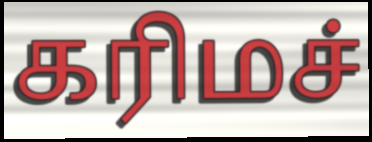
கரிமச்